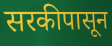
सरकीपासून